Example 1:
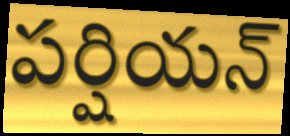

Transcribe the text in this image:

పర్షియన్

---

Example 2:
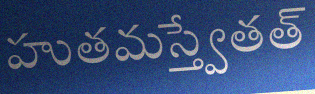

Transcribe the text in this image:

హుతమస్త్వేతత్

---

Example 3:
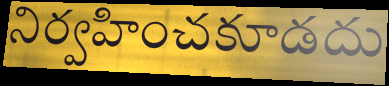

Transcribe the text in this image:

నిర్వహించకూడదు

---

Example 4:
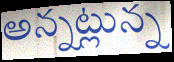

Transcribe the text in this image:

అన్నట్లున్న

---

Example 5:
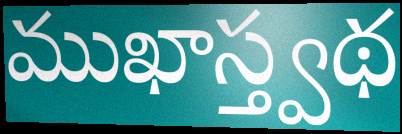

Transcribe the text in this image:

ముఖాస్త్వథ